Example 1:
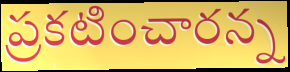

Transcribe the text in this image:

ప్రకటించారన్న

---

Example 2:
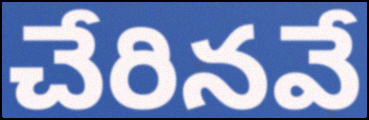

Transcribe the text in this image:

చేరినవే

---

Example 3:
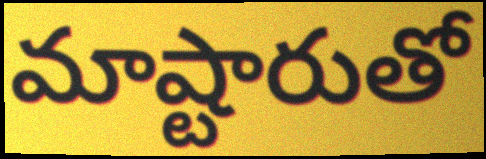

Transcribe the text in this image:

మాష్టారుతో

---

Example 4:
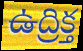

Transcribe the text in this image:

ఉద్రిక్త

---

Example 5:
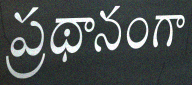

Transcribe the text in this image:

ప్రథానంగా